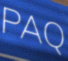
PAQ